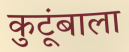
कुटूंबाला